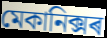
মেকানিক্সৰ